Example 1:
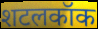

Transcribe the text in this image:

शटलकॉक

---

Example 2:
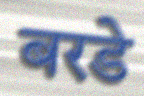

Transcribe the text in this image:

बरडे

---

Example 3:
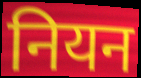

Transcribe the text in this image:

नियन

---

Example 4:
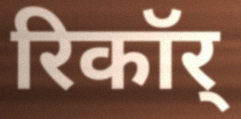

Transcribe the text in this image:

रिकॉर्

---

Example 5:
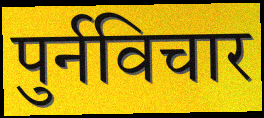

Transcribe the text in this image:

पुर्नविचार